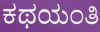
ಕಥಯಂತಿ